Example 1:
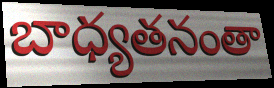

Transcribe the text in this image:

బాధ్యతనంతా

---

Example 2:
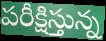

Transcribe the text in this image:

పరీక్షిస్తున్న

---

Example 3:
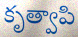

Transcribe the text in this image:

కృత్వాపి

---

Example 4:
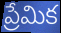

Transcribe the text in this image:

ప్రేమిక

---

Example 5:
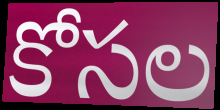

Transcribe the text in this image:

కోసల